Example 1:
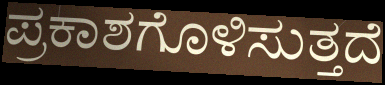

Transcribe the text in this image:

ಪ್ರಕಾಶಗೊಳಿಸುತ್ತದೆ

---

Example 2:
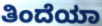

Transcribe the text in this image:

ತಿಂದೆಯಾ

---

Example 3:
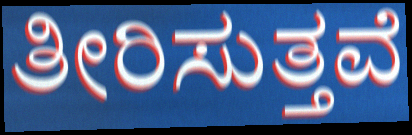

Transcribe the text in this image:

ತೀರಿಸುತ್ತವೆ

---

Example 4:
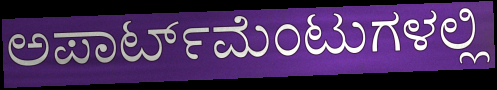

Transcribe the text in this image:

ಅಪಾರ್ಟ್‌ಮೆಂಟುಗಳಲ್ಲಿ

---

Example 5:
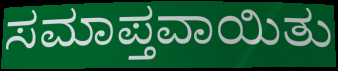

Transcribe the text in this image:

ಸಮಾಪ್ತವಾಯಿತು